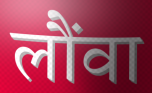
लौंवा